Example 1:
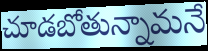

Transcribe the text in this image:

చూడబోతున్నామనే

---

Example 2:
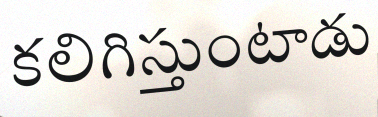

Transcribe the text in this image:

కలిగిస్తుంటాడు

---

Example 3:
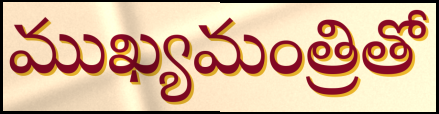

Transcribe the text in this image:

ముఖ్యమంత్రితో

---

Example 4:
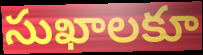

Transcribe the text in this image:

సుఖాలకూ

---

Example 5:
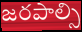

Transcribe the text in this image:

జరపాల్సి